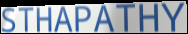
STHAPATHY